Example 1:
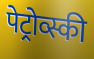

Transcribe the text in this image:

पेट्रोव्स्की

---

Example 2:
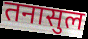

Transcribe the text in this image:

तनासुल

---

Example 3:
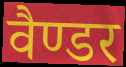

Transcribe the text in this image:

वैण्डर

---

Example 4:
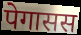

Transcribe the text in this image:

पेगासस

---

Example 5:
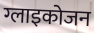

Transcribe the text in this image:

ग्लाइकोजन